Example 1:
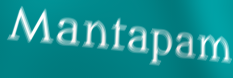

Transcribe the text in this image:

Mantapam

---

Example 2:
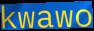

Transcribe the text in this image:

kwawo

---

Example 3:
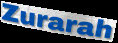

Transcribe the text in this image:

Zurarah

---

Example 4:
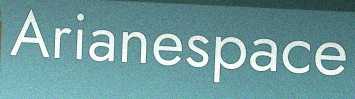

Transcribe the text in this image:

Arianespace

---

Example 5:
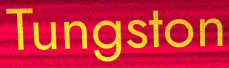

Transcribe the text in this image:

Tungston